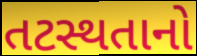
તટસ્થતાનો